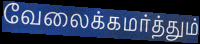
வேலைக்கமர்த்தும்